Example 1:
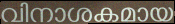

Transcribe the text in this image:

വിനാശകമായ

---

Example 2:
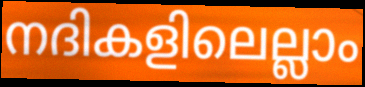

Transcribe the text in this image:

നദികളിലെല്ലാം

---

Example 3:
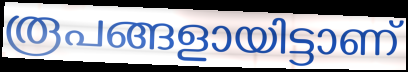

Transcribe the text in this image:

രൂപങ്ങളായിട്ടാണ്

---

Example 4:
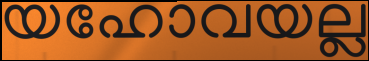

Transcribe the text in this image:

യഹോവയല്ല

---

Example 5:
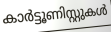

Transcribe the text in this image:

കാർട്ടൂണിസ്റ്റുകൾ